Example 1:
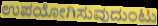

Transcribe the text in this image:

ಉಪಯೋಗಿಸುವುದುಂಟು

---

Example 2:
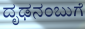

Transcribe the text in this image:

ದೃಢನಂಬುಗೆ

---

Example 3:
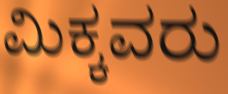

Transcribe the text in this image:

ಮಿಕ್ಕವರು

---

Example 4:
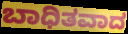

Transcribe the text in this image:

ಬಾಧಿತವಾದ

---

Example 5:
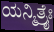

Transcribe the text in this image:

ಯನ್ಮಿತ್ರೈಃ